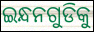
ଇନ୍ଧନଗୁଡିକୁ